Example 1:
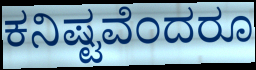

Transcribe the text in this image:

ಕನಿಷ್ಟವೆಂದರೂ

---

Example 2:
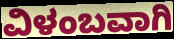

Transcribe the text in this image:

ವಿಳಂಬವಾಗಿ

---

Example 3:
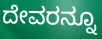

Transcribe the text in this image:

ದೇವರನ್ನೂ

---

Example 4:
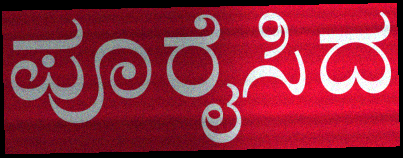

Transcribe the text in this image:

ಪೂರೈಸಿದ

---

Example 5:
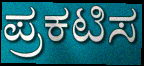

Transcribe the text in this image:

ಪ್ರಕಟಿಸ